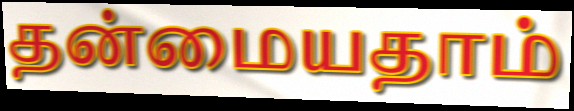
தன்மையதாம்